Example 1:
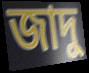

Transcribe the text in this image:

জাদু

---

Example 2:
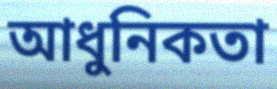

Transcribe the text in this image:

আধুনিকতা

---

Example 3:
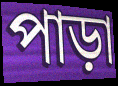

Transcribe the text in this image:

পাড়া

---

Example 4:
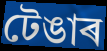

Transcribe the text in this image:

টেঙাৰ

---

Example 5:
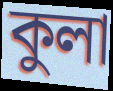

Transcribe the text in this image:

কুলা